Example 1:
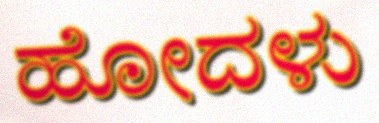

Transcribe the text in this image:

ಹೋದಳು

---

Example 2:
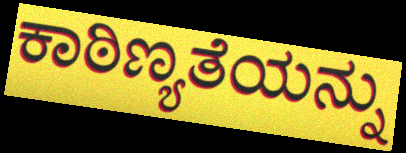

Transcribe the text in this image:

ಕಾಠಿಣ್ಯತೆಯನ್ನು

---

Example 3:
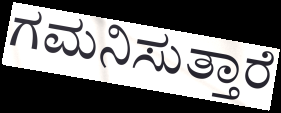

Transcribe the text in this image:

ಗಮನಿಸುತ್ತಾರೆ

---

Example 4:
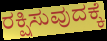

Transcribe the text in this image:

ರಕ್ಷಿಸುವುದಕ್ಕೆ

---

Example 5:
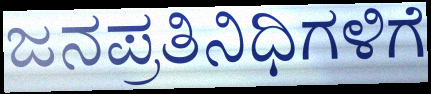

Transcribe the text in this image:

ಜನಪ್ರತಿನಿಧಿಗಳಿಗೆ